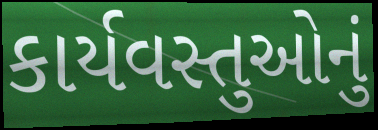
કાર્યવસ્તુઓનું